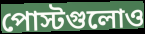
পোস্টগুলোও